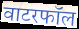
वाटरफॉल